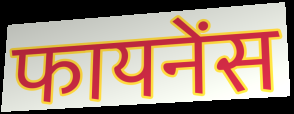
फायनेंस